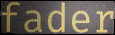
fader